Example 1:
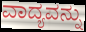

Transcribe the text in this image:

ವಾದ್ಯವನ್ನು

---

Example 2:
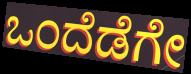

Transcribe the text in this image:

ಒಂದೆಡೆಗೇ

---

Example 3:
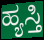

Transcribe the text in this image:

ಹ್ಯಸ್ತಿ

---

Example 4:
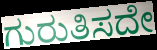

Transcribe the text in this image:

ಗುರುತಿಸದೇ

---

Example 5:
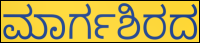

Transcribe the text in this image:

ಮಾರ್ಗಶಿರದ